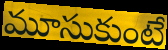
మూసుకుంటే